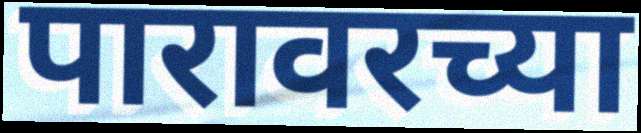
पारावरच्या